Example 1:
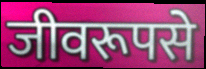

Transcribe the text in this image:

जीवरूपसे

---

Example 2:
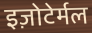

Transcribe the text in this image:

इज़ोटेर्मल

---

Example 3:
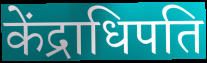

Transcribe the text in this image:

केंद्राधिपति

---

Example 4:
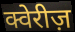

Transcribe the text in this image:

क्वेरीज़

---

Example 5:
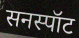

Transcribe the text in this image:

सनस्पॉट